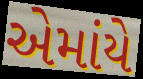
એમાંયે